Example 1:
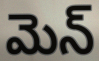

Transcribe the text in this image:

మెన్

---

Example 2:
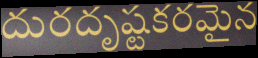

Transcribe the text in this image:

దురదృష్టకరమైన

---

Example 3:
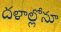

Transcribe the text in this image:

దళాల్లోనూ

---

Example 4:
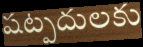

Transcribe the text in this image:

షట్పదులకు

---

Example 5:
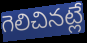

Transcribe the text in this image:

గెలిచినట్లే